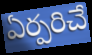
ఏర్పరిచే